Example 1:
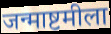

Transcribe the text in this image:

जन्माष्टमीला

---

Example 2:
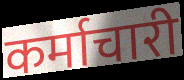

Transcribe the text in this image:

कर्माचारी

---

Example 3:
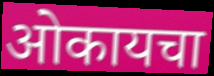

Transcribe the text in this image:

ओकायचा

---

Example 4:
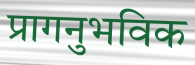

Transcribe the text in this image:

प्रागनुभविक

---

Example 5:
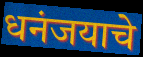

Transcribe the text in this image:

धनंजयाचे